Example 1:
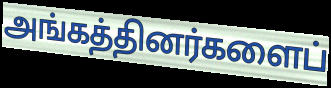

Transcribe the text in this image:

அங்கத்தினர்களைப்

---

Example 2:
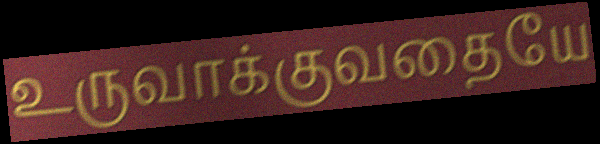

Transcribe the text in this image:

உருவாக்குவதையே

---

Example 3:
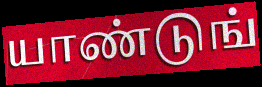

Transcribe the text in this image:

யாண்டுங்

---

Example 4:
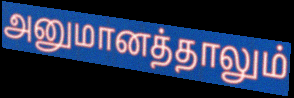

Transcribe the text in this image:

அனுமானத்தாலும்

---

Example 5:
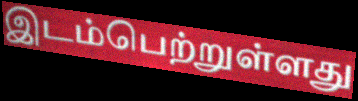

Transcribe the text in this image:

இடம்பெற்றுள்ளது